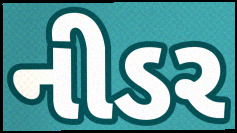
નીડર